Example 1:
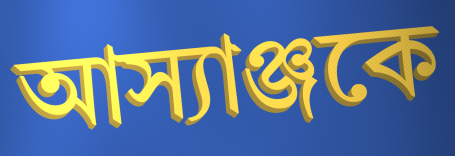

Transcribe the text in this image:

আস্যাঞ্জকে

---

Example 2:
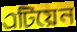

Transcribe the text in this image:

এটিয়েন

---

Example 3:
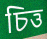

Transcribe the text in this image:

চিত্ত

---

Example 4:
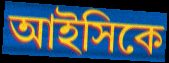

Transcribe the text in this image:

আইসিকে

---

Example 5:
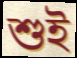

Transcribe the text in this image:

শুই